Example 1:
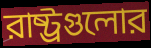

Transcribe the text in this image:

রাষ্ট্রগুলোর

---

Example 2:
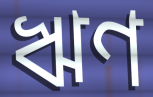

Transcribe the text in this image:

ঋণ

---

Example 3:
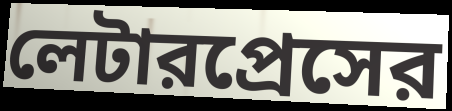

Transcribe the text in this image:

লেটারপ্রেসের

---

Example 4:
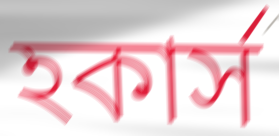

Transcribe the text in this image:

হকার্স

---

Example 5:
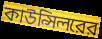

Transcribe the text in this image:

কাউন্সিলরের